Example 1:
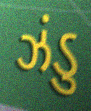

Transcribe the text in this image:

ઝંડુ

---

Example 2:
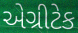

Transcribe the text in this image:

એગ્રીટેક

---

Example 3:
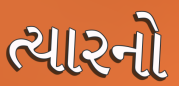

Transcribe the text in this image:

ત્યારનો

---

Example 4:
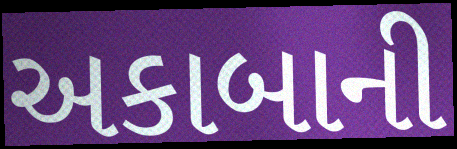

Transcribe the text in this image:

અકાબાની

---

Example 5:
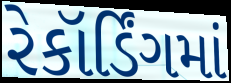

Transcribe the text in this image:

રેકૉર્ડિંગમાં